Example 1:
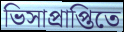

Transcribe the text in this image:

ভিসাপ্রাপ্তিতে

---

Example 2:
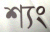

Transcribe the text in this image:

শ্যং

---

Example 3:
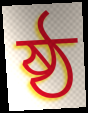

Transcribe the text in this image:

ষ্ঠ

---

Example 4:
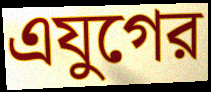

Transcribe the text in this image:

এযুগের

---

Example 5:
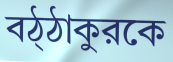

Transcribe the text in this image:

বঠ্ঠাকুরকে